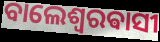
ବାଲେଶ୍ଵରଵାସୀ